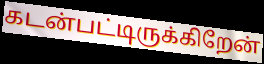
கடன்பட்டிருக்கிறேன்